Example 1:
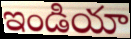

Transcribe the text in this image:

ఇండియా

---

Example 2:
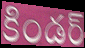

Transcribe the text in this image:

కిండర్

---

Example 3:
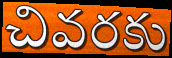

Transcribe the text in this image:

చివరకు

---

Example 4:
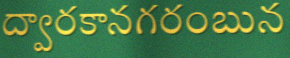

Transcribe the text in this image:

ద్వారకానగరంబున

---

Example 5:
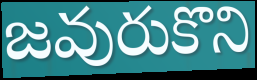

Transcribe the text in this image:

జవురుకొని